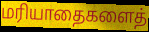
மரியாதைகளைத்